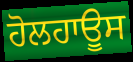
ਹੋਲਹਾਊਸ